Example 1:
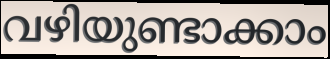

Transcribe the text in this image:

വഴിയുണ്ടാക്കാം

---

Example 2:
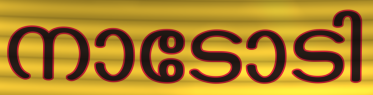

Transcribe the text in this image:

നാടോടി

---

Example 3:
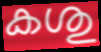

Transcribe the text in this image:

കശു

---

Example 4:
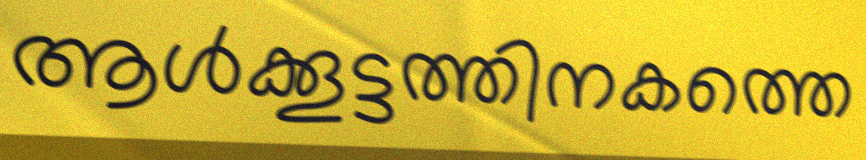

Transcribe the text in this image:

ആൾക്കൂട്ടത്തിനകത്തെ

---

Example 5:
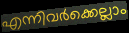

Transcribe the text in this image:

എന്നിവർക്കെല്ലാം